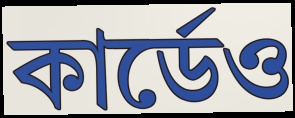
কার্ডেও